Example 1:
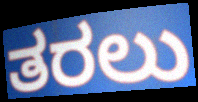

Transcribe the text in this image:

ತರಲು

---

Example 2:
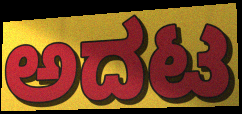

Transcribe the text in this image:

ಅದಟ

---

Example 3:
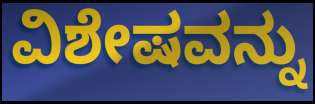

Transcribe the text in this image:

ವಿಶೇಷವನ್ನು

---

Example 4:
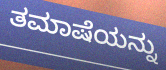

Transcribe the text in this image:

ತಮಾಷೆಯನ್ನು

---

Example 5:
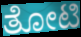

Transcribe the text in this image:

ತೋಟಿ